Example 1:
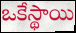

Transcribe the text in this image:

ఒకేస్థాయి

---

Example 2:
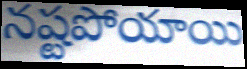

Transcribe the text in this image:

నష్టపోయాయి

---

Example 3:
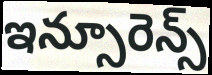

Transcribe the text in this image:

ఇన్సూరెన్స్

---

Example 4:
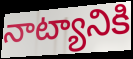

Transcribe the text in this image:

నాట్యానికి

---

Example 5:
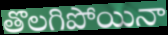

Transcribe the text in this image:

తొలగిపోయినా